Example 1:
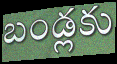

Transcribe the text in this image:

బండ్లకు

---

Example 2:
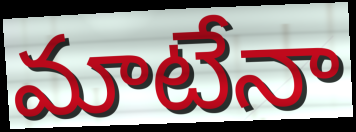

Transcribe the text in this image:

మాటేనా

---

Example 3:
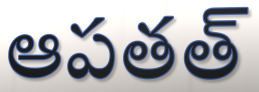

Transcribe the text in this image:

ఆపతత్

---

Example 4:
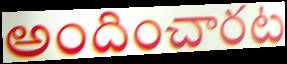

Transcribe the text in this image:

అందించారట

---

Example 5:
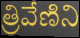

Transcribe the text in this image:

త్రివేణిని